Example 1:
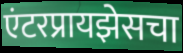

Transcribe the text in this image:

एंटरप्रायझेसचा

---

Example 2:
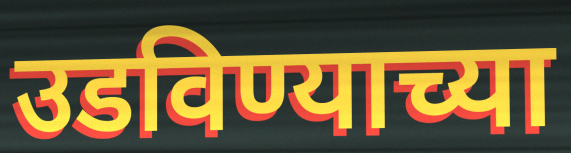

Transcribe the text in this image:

उडविण्याच्या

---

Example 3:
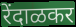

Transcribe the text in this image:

रेंदाळकर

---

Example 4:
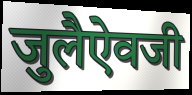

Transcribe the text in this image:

जुलैऐवजी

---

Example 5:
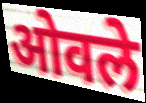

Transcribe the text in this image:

ओवले